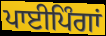
ਪਾਈਪਿੰਗਾਂ